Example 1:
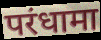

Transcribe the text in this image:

परंधामा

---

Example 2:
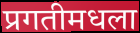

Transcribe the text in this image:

प्रगतीमधला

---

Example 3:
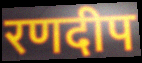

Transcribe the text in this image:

रणदीप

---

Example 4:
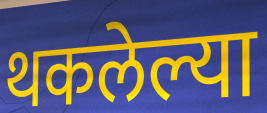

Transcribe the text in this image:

थकलेल्या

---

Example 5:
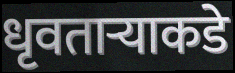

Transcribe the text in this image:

धृवतार्‍याकडे